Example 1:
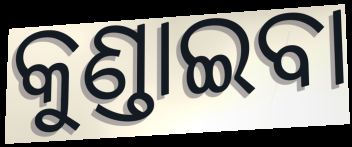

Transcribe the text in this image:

କୁଣ୍ଡାଇବା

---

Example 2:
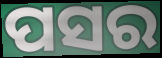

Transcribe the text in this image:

ପସର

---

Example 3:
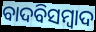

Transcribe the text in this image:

ବାଦବିସମ୍ବାଦ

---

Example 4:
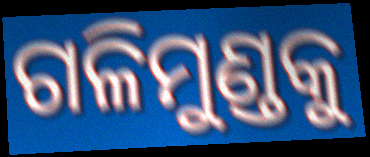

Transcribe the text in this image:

ଗଳିମୁଣ୍ଡକୁ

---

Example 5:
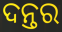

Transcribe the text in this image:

ଦନ୍ତର